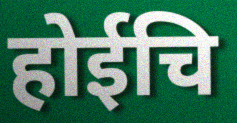
होईचि